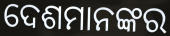
ଦେଶମାନଙ୍କର